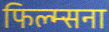
फिल्म्सना